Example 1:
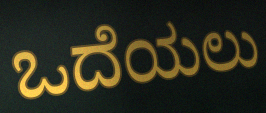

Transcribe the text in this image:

ಒದೆಯಲು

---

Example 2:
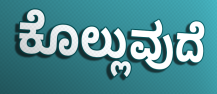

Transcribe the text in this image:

ಕೊಲ್ಲುವುದೆ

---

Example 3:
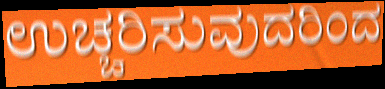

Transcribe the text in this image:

ಉಚ್ಚರಿಸುವುದರಿಂದ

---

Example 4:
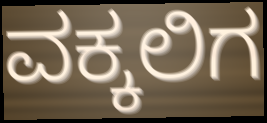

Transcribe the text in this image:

ವಕ್ಕಲಿಗ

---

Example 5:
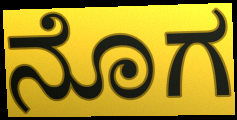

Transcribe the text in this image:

ನೊಗ